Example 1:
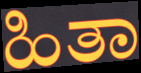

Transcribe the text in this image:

ಹಿತಾ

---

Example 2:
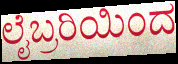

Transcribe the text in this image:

ಲೈಬ್ರರಿಯಿಂದ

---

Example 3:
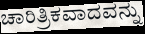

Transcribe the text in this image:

ಚಾರಿತ್ರಿಕವಾದವನ್ನು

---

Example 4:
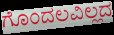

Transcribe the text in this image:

ಗೊಂದಲವಿಲ್ಲದ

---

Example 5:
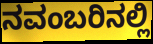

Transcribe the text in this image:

ನವಂಬರಿನಲ್ಲಿ